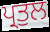
ਪ੍ਰਤੁਲ